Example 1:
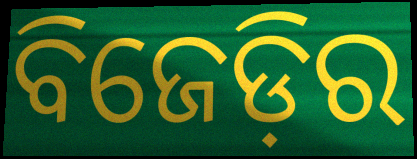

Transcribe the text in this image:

ବିଜେଡ଼ିର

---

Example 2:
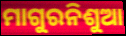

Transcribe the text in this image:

ମାଗୁରନିଶୁଆ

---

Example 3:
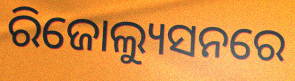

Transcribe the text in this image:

ରିଜୋଲ୍ୟୁସନରେ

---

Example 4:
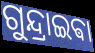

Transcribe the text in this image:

ଗୁନ୍ଦ୍ରାଇଵା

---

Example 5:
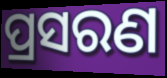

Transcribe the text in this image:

ପ୍ରସରଣ